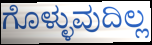
ಗೊಳ್ಳುವುದಿಲ್ಲ